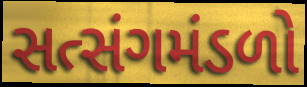
સત્સંગમંડળો